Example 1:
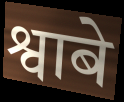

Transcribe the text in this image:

श्वाबे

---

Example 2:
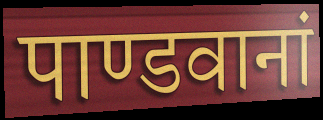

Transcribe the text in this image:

पाण्डवानां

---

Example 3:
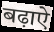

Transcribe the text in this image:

बढ़ाऐ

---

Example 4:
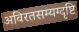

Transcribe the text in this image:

अविरतसम्यग्दृष्टि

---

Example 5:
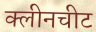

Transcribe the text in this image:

क्लीनचीट